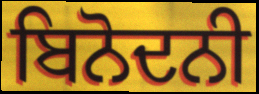
ਬਿਨੋਦਨੀ